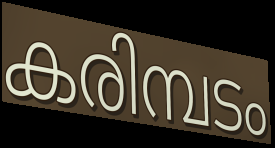
കരിമ്പടം